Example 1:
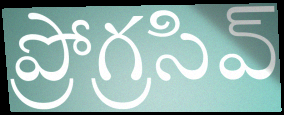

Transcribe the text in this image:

ప్రోగ్రసివ్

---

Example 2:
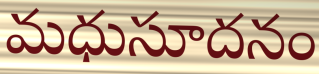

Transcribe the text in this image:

మధుసూదనం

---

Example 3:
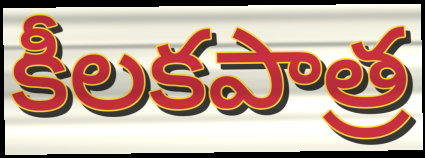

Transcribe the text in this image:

కీలకపాత్ర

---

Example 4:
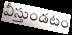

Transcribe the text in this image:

వీస్తుండటం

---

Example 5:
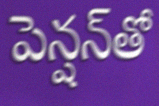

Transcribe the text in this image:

పెన్షన్‌తో